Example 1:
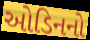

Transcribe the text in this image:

ઓડિનનો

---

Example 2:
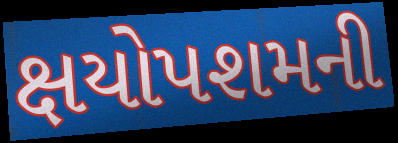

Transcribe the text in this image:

ક્ષયોપશમની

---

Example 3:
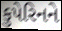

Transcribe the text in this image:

કુપેરિનને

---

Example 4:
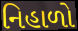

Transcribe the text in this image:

નિહાળો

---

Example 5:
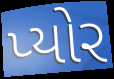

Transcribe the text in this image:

પ્યોર